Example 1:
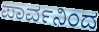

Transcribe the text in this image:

ಪಾರ್ವನಿಂದ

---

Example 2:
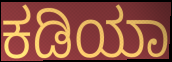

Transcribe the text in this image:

ಕಡಿಯಾ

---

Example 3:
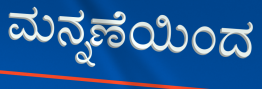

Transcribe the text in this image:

ಮನ್ನಣೆಯಿಂದ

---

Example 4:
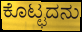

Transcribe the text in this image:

ಕೊಟ್ಟದನು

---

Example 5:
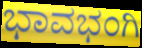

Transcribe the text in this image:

ಭಾವಭಂಗಿ